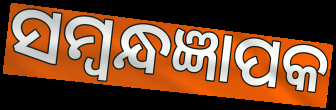
ସମ୍ବନ୍ଧଜ୍ଞାପକ